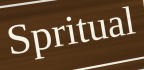
Spritual